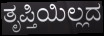
ತೃಪ್ತಿಯಿಲ್ಲದ